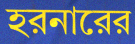
হরনারের